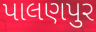
પાલણપુર